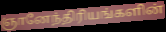
ஞானேந்திரியங்களின்